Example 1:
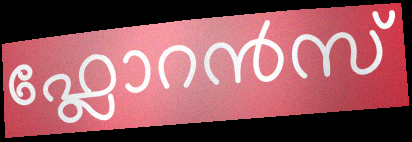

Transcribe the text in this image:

ഫ്ലോറൻസ്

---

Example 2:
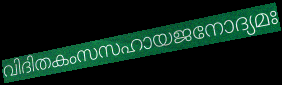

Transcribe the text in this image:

വിദിതകംസസഹായജനോദ്യമഃ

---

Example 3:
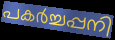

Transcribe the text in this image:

പകർച്ചപ്പനി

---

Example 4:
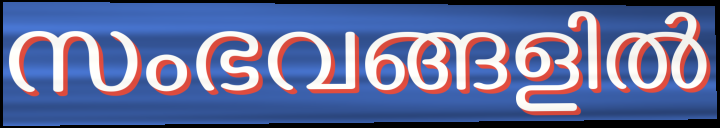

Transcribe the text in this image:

സംഭവങ്ങളിൽ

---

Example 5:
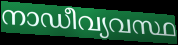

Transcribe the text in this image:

നാഡീവ്യവസ്ഥ